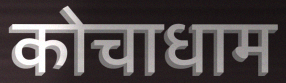
कोचाधाम